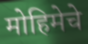
मोहिमेचे